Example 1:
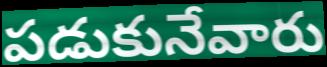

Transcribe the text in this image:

పడుకునేవారు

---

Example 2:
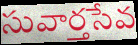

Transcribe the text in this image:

సువార్తసేవ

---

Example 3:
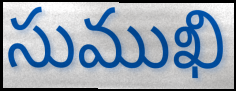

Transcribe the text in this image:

సుముఖి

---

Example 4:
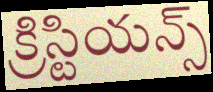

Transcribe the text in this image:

క్రిస్టియన్స్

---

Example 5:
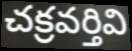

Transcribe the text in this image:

చక్రవర్తివి